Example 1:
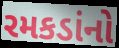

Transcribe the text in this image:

રમકડાંનો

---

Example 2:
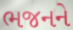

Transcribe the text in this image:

ભજનને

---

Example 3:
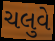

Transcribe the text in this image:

ચલુવે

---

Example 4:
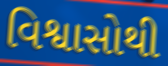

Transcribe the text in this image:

વિશ્વાસોથી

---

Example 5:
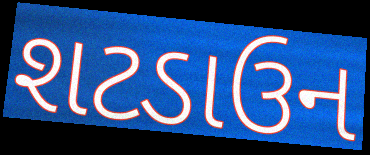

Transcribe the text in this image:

શટડાઉન